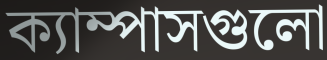
ক্যাম্পাসগুলো